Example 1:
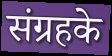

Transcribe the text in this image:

संग्रहके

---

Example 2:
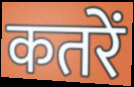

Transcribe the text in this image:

कतरें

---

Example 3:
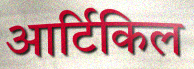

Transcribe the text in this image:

आर्टिकिल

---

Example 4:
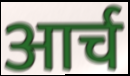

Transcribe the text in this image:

आर्च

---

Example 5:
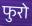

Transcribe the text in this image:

फुरो